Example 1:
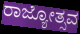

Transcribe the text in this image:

ರಾಜ್ಯೋತ್ಸವ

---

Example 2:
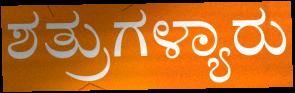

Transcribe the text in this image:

ಶತ್ರುಗಳ್ಯಾರು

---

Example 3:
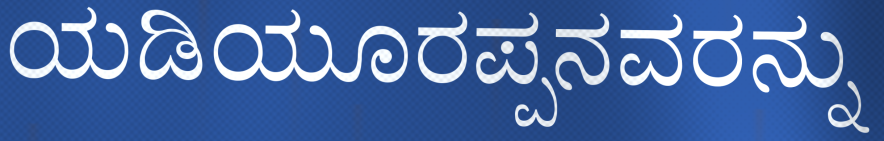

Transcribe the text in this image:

ಯಡಿಯೂರಪ್ಪನವರನ್ನು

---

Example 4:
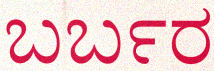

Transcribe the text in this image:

ಬರ್ಬರ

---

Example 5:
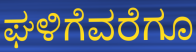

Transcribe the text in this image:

ಘಳಿಗೆವರೆಗೂ